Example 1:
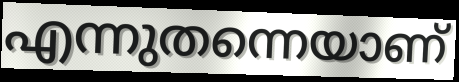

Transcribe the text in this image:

എന്നുതന്നെയാണ്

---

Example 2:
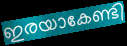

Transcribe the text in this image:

ഇരയാകേണ്ടി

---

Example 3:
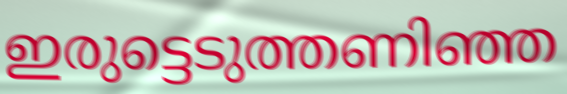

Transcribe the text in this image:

ഇരുട്ടെടുത്തണിഞ്ഞ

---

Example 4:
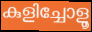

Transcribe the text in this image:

കുളിച്ചോളൂ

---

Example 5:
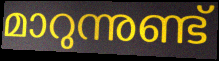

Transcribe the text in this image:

മാറുന്നുണ്ട്